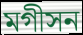
মগীসন